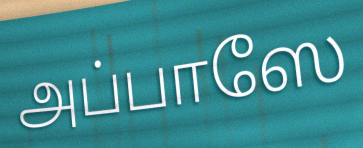
அப்பாஸே